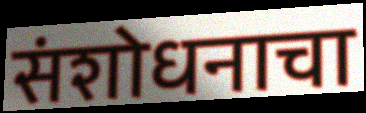
संशोधनाचा